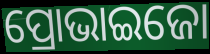
ପ୍ରୋଭାଇଜୋ